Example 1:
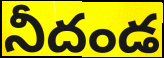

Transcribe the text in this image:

నీదండ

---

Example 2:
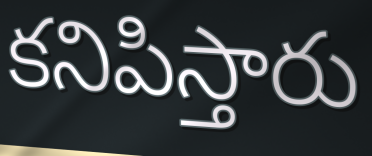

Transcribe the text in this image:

కనిపిస్తారు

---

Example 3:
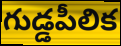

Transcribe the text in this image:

గుడ్డపీలిక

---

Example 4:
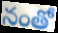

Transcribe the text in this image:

నంతో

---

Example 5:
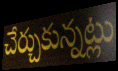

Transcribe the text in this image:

చేర్చుకున్నట్లు